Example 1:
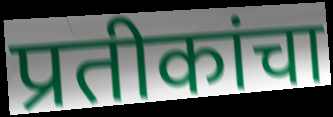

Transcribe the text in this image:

प्रतीकांचा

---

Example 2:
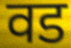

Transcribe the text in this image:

वड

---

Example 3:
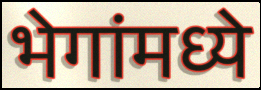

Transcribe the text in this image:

भेगांमध्ये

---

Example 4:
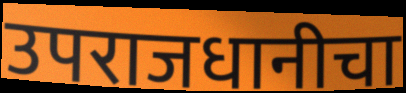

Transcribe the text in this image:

उपराजधानीचा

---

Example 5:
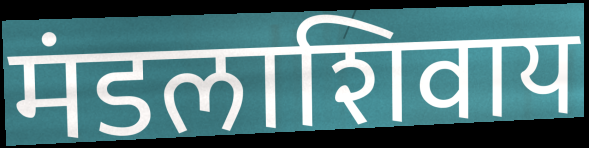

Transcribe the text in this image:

मंडलाशिवाय